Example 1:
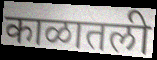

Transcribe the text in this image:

काळातली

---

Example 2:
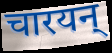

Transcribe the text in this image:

चारयन्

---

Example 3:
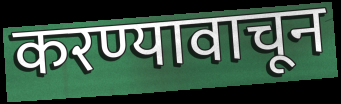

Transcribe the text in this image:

करण्यावाचून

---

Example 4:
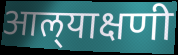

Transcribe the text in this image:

आल्याक्षणी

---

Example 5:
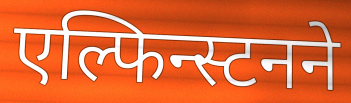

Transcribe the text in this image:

एल्फिन्स्टनने